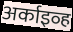
अर्काइव्ह